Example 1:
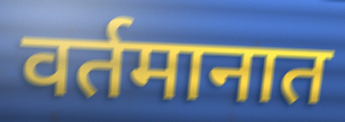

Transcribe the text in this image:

वर्तमानात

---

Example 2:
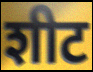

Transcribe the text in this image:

शीट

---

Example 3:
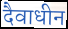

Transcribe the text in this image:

दैवाधीन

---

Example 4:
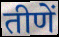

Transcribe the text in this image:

तीणें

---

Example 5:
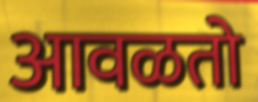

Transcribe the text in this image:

आवळतो